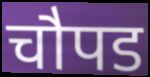
चौपड